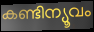
കണ്ടിന്യൂവം